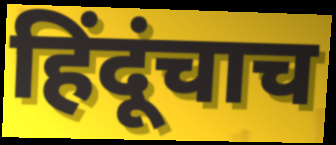
हिंदूंचाच